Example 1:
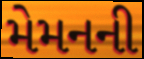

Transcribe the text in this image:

મેમનની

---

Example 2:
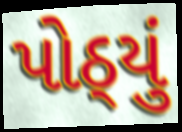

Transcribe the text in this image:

પોઠ્યું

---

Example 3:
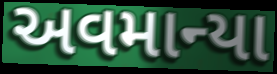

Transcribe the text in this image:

અવમાન્યા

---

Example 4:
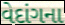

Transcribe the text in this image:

વેદાંગના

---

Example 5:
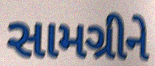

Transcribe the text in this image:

સામગ્રીને